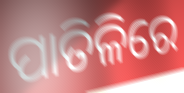
ପାତିଳିରେ